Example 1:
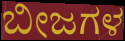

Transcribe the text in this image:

ಬೀಜಗಳ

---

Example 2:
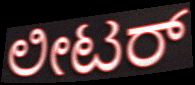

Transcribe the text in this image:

ಲೀಟರ್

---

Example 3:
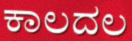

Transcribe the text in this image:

ಕಾಲದಲ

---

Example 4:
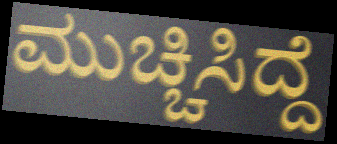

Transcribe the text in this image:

ಮುಚ್ಚಿಸಿದ್ದೆ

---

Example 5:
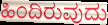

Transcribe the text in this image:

ಹಿಂದಿರುವುದು